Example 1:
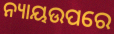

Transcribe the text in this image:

ନ୍ୟାୟଉପରେ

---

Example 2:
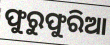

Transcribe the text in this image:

ଫୁରୁଫୁରିଆ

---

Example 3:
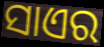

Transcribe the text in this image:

ସାଏର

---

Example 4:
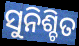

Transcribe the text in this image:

ସୁନିଶ୍ଚିତ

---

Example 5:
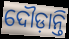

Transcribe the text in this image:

ଦୌଡ଼ାନ୍ତି